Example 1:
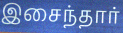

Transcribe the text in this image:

இசைந்தார்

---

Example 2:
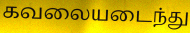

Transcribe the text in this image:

கவலையடைந்து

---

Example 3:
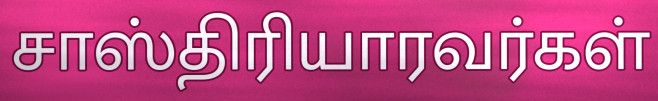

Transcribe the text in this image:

சாஸ்திரியாரவர்கள்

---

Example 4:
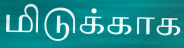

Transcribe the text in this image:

மிடுக்காக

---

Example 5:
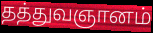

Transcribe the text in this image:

தத்துவஞானம்